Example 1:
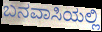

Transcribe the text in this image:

ಬನವಾಸಿಯಲ್ಲಿ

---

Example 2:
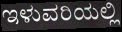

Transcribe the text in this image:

ಇಳುವರಿಯಲ್ಲಿ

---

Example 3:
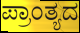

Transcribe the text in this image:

ಪ್ರಾಂತ್ಯದ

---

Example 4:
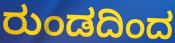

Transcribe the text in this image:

ರುಂಡದಿಂದ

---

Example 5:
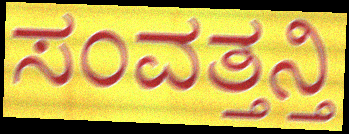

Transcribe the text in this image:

ಸಂವತ್ತನ್ತಿ